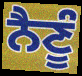
ਨੈਣੂੰ